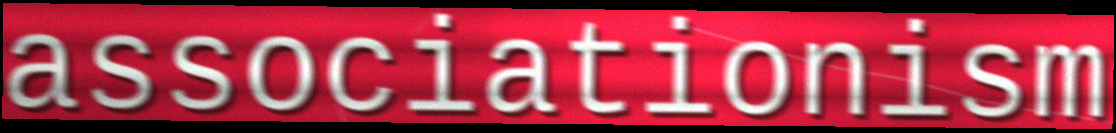
associationism